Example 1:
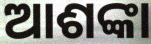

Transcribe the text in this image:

ଆଶଙ୍କା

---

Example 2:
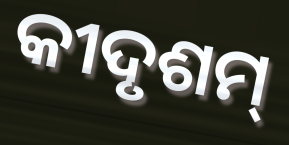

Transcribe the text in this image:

କୀଦୃଶମ୍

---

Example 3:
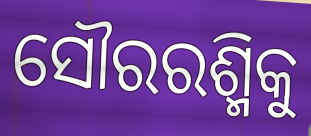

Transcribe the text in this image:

ସୌରରଶ୍ମିକୁ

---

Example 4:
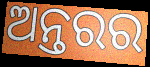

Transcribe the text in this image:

ଅନ୍ତରର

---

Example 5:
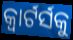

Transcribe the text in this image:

କ୍ୱାର୍ଟର୍ସକୁ